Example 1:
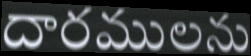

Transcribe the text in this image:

దారములను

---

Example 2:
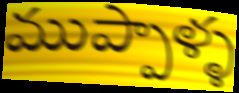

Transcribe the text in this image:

ముప్పాళ్ళ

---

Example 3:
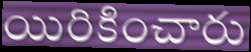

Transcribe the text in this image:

యిరికించారు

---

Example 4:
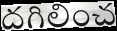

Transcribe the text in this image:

దగిలించ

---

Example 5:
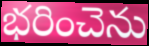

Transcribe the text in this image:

భరించెను